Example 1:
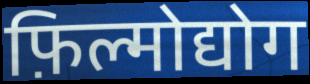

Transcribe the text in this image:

फ़िल्मोद्योग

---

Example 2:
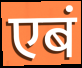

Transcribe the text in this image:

एबं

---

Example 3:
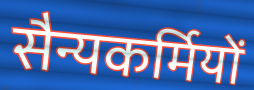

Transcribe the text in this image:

सैन्यकर्मियों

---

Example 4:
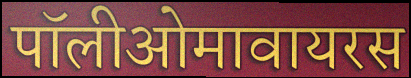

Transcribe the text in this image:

पॉलीओमावायरस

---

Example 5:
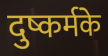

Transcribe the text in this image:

दुष्कर्मके